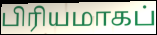
பிரியமாகப்